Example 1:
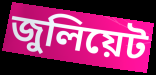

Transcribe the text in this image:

জুলিয়েট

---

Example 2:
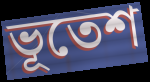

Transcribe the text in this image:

ভূতেশ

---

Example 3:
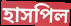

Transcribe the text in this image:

হাসপিল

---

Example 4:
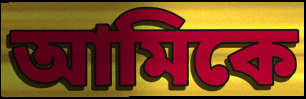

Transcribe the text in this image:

আমিকে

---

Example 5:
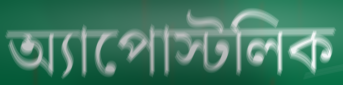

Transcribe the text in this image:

অ্যাপোস্টলিক